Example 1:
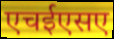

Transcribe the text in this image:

एचईएसए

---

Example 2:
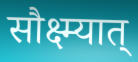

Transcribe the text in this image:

सौक्ष्म्यात्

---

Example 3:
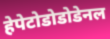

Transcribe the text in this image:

हेपेटोडोडोडेनल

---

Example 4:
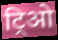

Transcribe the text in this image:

ट्रिओ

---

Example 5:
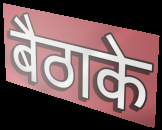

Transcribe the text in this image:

बैठाके